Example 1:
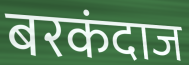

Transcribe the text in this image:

बरकंदाज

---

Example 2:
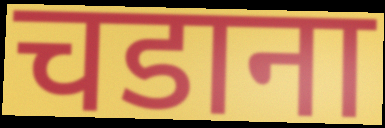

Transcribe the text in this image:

चडाना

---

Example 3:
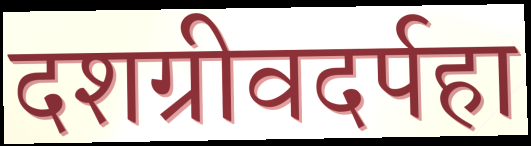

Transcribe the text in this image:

दशग्रीवदर्पहा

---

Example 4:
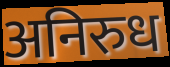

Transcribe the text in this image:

अनिरुध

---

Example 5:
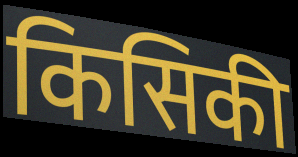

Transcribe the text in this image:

किसिकी